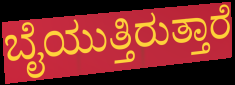
ಬೈಯುತ್ತಿರುತ್ತಾರೆ